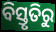
ବିସ୍ତୃତିରୁ